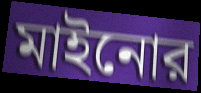
মাইনোর